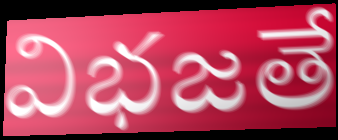
విభజతే